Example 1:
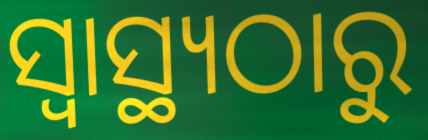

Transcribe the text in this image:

ସ୍ବାସ୍ଥ୍ୟଠାରୁ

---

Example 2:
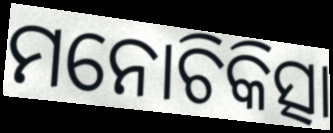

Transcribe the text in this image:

ମନୋଚିକିତ୍ସା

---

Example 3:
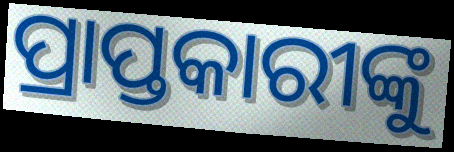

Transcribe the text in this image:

ପ୍ରାପ୍ତକାରୀଙ୍କୁ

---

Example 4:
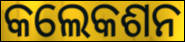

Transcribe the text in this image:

କଲେକଶନ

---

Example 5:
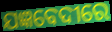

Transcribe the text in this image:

ଯଜ୍ଞବେଦୀରେ